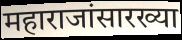
महाराजांसारख्या